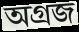
অগ্ৰজ